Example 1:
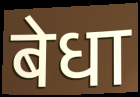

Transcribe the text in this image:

बेधा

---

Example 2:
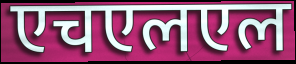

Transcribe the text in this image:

एचएलएल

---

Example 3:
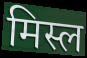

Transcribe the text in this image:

मिस्ल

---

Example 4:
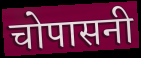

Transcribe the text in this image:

चोपासनी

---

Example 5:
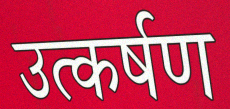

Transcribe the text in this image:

उत्कर्षण